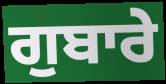
ਗੁਬਾਰੇ